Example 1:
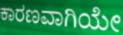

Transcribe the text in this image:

ಕಾರಣವಾಗಿಯೇ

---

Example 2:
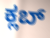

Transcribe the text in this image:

ಕ್ಲಬ್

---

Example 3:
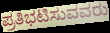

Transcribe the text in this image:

ಪ್ರತಿಭಟಿಸುವವರು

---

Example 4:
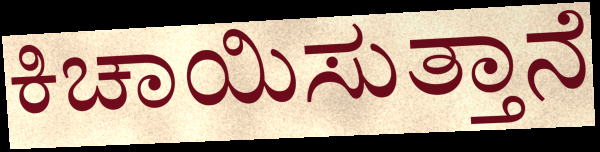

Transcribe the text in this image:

ಕಿಚಾಯಿಸುತ್ತಾನೆ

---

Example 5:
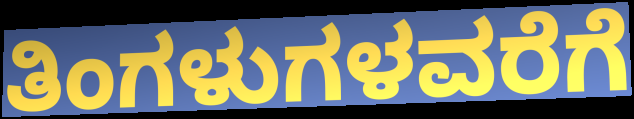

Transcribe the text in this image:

ತಿಂಗಳುಗಳವರೆಗೆ